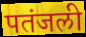
पतंजली